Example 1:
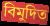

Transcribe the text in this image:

বিমুদিত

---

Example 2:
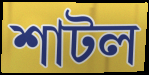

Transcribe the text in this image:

শাটল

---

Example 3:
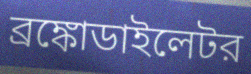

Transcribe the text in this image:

ব্রঙ্কোডাইলেটর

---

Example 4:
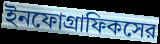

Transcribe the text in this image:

ইনফোগ্রাফিকসের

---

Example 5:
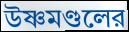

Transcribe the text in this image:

উষ্ণমণ্ডলের